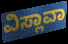
ವಿಸ್ಲಾವಾ